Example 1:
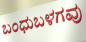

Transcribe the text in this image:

ಬಂಧುಬಳಗವು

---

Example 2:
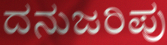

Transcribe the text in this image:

ದನುಜರಿಪು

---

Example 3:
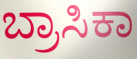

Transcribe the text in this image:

ಬ್ರಾಸಿಕಾ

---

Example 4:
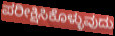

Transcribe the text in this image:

ಪರೀಕ್ಷಿಸಿಕೊಳ್ಳುವುದು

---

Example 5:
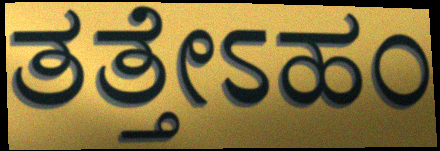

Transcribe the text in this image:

ತತ್ತೇಽಹಂ